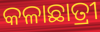
କଳାଛାତ୍ରୀ